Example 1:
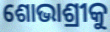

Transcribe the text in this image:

ଶୋଭାଶ୍ରୀକୁ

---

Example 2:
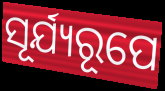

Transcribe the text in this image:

ସୂର୍ଯ୍ୟରୂପେ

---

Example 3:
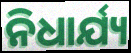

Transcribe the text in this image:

ନିଧାର୍ଯ୍ୟ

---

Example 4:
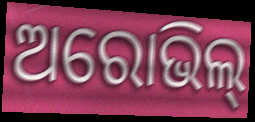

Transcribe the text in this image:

ଅରୋଭିଲ୍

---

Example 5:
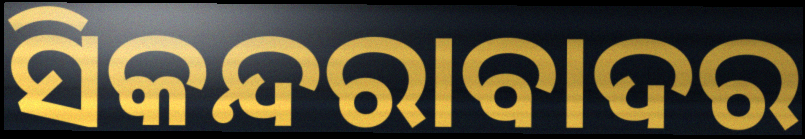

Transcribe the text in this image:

ସିକନ୍ଦରାବାଦର